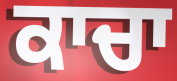
ਕਾਚਾ